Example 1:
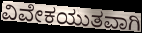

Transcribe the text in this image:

ವಿವೇಕಯುತವಾಗಿ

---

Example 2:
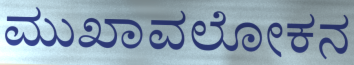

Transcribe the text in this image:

ಮುಖಾವಲೋಕನ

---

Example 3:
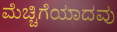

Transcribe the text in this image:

ಮೆಚ್ಚಿಗೆಯಾದವು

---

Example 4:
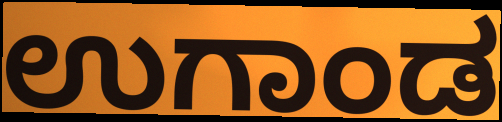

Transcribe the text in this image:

ಉಗಾಂಡ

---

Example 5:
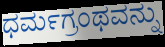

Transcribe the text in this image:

ಧರ್ಮಗ್ರಂಥವನ್ನು